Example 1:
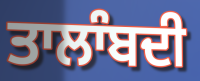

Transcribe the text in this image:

ਤਾਲਾੰਬਦੀ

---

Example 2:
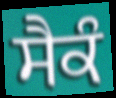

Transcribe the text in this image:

ਸੈਕੰ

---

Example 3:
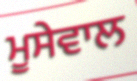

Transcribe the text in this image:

ਮੂਸੇਵਾਲ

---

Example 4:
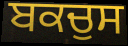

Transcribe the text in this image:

ਬਕਚੁਸ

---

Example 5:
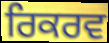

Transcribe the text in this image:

ਰਿਕਰਵ